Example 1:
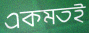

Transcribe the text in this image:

একমতই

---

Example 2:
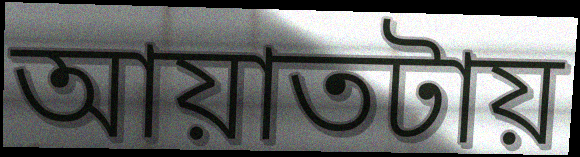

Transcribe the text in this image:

আয়াতটায়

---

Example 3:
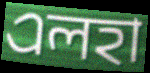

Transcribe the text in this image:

এলহা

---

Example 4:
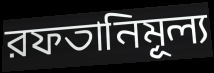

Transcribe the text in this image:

রফতানিমূল্য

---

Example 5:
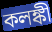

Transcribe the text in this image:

কলঙ্কী